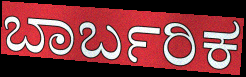
ಬಾರ್ಬರಿಕ